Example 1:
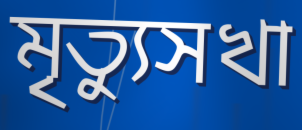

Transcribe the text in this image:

মৃত্যুসখা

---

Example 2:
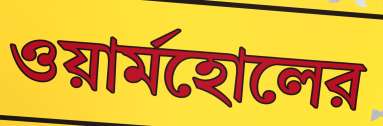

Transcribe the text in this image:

ওয়ার্মহোলের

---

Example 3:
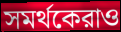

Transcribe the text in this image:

সমর্থকেরাও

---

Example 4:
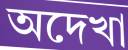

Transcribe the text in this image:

অদেখা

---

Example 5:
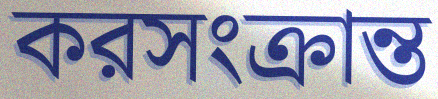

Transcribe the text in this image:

করসংক্রান্ত